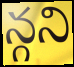
న్గని